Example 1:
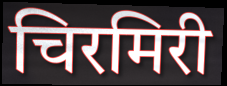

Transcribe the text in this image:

चिरमिरी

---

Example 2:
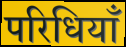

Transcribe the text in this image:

परिधियाँ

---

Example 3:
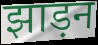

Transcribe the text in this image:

झाड़न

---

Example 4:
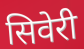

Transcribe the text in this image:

सिवेरी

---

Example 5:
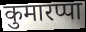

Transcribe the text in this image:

कुमारप्पा